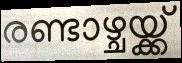
രണ്ടാഴ്ചയ്ക്ക്